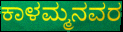
ಕಾಳಮ್ಮನವರ